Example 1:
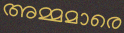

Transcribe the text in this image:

അമ്മമാരെ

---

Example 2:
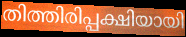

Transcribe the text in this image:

തിത്തിരിപ്പക്ഷിയായി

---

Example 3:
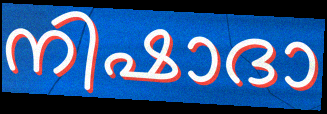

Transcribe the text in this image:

നിഷാദാ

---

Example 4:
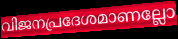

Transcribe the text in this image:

വിജനപ്രദേശമാണല്ലോ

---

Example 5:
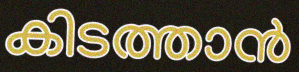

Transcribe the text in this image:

കിടത്താൻ